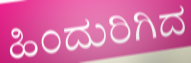
ಹಿಂದುರಿಗಿದ